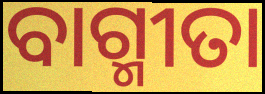
ବାଗ୍ମୀତା